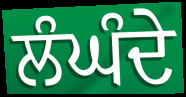
ਲੰਘੰਦੇ